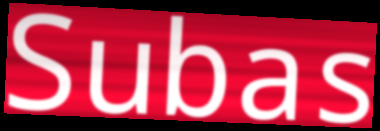
Subas